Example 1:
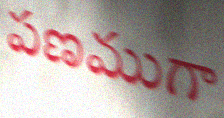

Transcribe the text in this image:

పణముగా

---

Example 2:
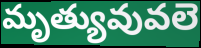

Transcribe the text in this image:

మృత్యువువలె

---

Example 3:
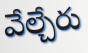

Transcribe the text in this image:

వేల్చేరు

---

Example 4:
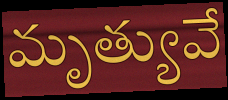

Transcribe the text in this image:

మృత్యువే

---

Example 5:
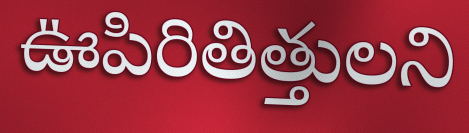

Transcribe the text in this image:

ఊపిరితిత్తులని